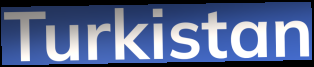
Turkistan